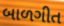
બાળગીત